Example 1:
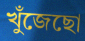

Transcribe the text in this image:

খুঁজেছো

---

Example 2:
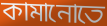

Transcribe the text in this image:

কামানোতে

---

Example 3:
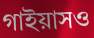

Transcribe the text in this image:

গাইয়াসও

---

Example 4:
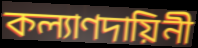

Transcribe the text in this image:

কল্যাণদায়িনী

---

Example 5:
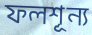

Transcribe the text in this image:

ফলশূন্য